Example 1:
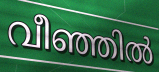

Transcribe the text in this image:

വീഞ്ഞിൽ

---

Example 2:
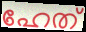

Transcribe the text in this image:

ഹേത്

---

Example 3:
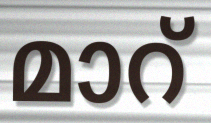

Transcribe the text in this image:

മാറ്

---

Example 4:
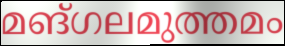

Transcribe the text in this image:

മങ്ഗലമുത്തമം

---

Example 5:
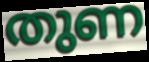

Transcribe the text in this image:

തുണ